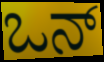
ಒನ್